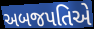
અબજપતિએ